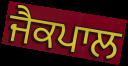
ਜੈਕਪਾਲ